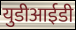
युडीआईडी